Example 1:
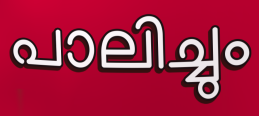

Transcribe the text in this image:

പാലിച്ചും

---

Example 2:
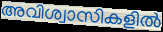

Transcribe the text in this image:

അവിശ്വാസികളിൽ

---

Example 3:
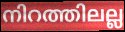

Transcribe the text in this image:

നിറത്തിലല്ല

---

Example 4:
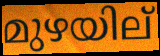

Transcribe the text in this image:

മുഴയില്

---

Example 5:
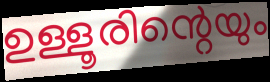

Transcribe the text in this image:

ഉള്ളൂരിന്റെയും